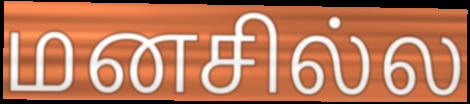
மனசில்ல